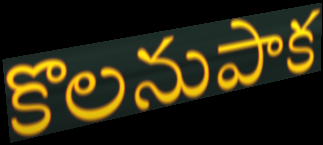
కొలనుపాక